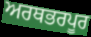
ਅਰਥਭਰਪੂਰ